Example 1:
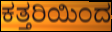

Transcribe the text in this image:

ಕತ್ತರಿಯಿಂದ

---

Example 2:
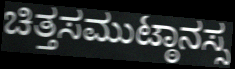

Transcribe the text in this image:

ಚಿತ್ತಸಮುಟ್ಠಾನಸ್ಸ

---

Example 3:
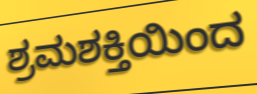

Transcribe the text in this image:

ಶ್ರಮಶಕ್ತಿಯಿಂದ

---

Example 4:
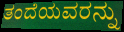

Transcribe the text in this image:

ತಂದೆಯವರನ್ನು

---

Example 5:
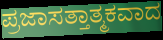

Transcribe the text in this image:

ಪ್ರಜಾಸತ್ತಾತ್ಮಕವಾದ